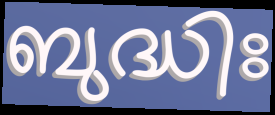
ബുദ്ധിഃ